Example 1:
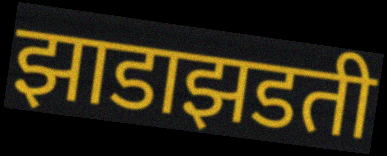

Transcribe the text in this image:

झाडाझडती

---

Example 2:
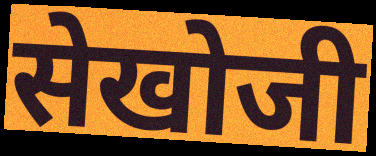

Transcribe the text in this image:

सेखोजी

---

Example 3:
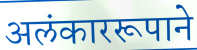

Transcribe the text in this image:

अलंकाररूपाने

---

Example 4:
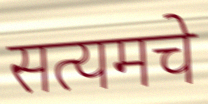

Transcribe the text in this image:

सत्यमचे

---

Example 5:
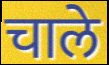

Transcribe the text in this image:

चाले